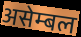
असेम्बल